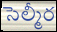
సెల్మీర